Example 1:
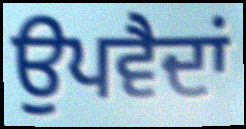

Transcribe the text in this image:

ਉਪਵੈਦਾਂ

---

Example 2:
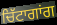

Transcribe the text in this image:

ਚਿੱਟਾਗਾਂਗ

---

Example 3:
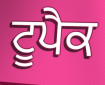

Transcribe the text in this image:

ਟੂਪੈਕ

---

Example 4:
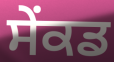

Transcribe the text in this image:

ਸੇਂਕਡ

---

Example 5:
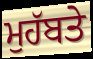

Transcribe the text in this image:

ਮੁਹੱਬਤੇ